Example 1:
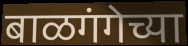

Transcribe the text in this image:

बाळगंगेच्या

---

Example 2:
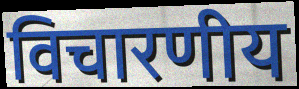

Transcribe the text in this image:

विचारणीय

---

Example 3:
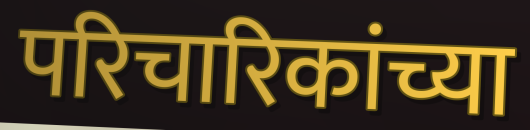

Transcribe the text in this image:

परिचारिकांच्या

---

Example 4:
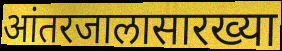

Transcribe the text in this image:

आंतरजालासारख्या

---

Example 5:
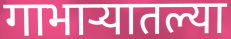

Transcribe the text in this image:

गाभाऱ्यातल्या